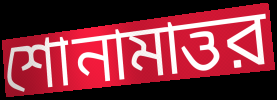
শোনামাত্তর